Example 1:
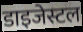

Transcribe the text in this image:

डाइजेस्टल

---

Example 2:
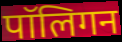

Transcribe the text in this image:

पॉलिगन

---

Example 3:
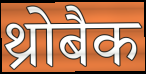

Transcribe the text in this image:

थ्रोबैक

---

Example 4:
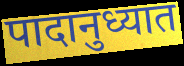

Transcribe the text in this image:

पादानुध्यात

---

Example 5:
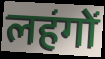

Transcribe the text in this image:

लहंगों